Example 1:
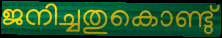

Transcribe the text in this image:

ജനിച്ചതുകൊണ്ടു്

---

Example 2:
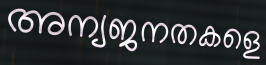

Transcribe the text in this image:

അന്യജനതകളെ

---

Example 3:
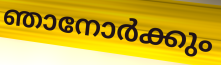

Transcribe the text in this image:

ഞാനോർക്കും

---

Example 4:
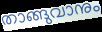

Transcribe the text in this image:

താങ്ങുവാനും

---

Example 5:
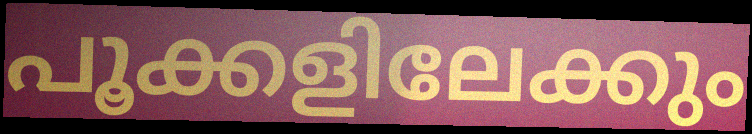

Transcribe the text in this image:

പൂക്കളിലേക്കും